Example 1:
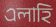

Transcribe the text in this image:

এলাহি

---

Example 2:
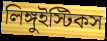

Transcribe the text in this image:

লিঙ্গুইস্টিকস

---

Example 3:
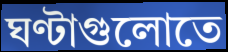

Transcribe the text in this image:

ঘণ্টাগুলোতে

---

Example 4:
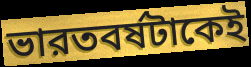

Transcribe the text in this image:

ভারতবর্ষটাকেই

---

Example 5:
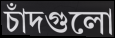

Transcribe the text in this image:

চাঁদগুলো